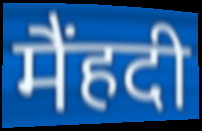
मैंहदी